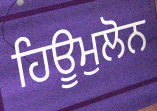
ਹਿਊਮੁਲੋਨ